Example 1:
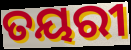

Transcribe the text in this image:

ତୟରୀ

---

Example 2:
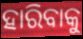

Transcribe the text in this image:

ହାରିବାକୁ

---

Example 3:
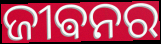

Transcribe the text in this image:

ଜୀଵନର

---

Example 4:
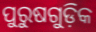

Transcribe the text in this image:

ପୁରୁଷଗୁଡ଼ିକ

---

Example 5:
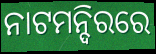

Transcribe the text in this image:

ନାଟମନ୍ଦିରରେ